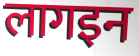
लागइन